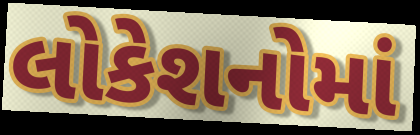
લોકેશનોમાં